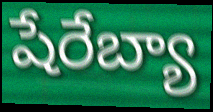
షేరేబ్యా